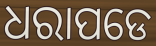
ଧରାପଡେ